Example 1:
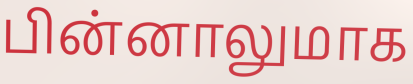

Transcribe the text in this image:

பின்னாலுமாக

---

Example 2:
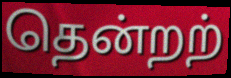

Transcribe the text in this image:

தென்றற்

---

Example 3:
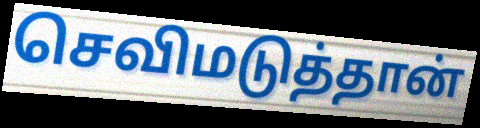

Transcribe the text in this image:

செவிமடுத்தான்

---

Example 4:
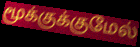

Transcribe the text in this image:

மூக்குக்குமேல்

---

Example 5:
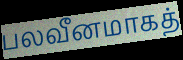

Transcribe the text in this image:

பலவீனமாகத்